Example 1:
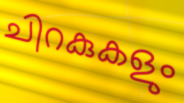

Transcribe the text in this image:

ചിറകുകളും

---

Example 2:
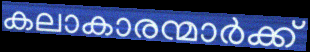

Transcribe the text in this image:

കലാകാരന്മാർക്ക്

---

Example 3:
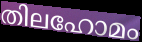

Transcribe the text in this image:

തിലഹോമം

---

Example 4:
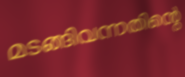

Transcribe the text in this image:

മടങ്ങിവന്നതിന്റെ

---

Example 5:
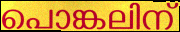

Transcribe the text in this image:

പൊങ്കലിന്